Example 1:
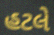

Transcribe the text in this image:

હટલે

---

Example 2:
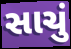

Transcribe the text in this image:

સાચું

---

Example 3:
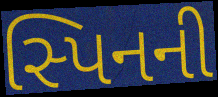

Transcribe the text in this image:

સ્પિનની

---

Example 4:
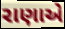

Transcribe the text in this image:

રાણાએ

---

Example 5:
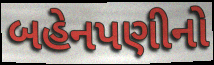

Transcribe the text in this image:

બહેનપણીનો